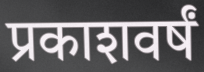
प्रकाशवर्षं